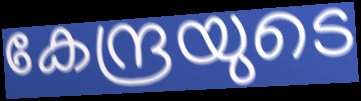
കേന്ദ്രയുടെ